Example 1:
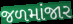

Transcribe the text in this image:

જળમાંજાર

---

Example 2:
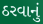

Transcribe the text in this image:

ઠરવાનું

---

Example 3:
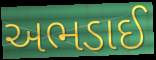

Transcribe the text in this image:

અભડાઈ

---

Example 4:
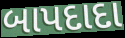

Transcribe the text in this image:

બાપદાદા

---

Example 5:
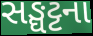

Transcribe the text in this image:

સઙ્ઘટ્ટના